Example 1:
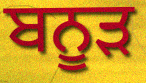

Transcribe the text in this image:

ਬਨੂੜ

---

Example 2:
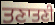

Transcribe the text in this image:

ਤਣਾਤਣੀ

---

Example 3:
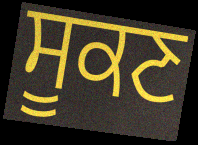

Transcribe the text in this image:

ਸੂਕਣ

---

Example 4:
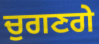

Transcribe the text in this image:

ਚੁਗਣਗੇ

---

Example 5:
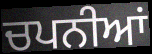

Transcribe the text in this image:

ਚਪਨੀਆਂ